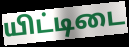
யிட்டிடை